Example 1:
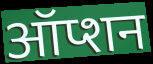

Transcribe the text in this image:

ऑप्‍शन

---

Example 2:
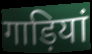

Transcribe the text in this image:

गाड़ियां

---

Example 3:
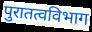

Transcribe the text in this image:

पुरातत्वविभाग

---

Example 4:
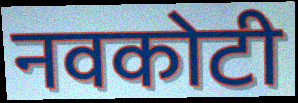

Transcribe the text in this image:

नवकोटी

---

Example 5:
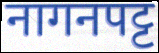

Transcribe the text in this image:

नागनपट्ट